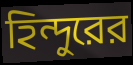
হিন্দুরের